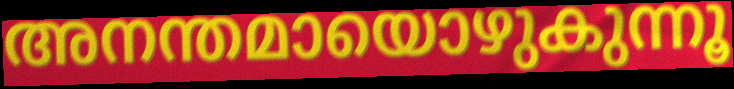
അനന്തമായൊഴുകുന്നൂ